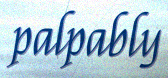
palpably